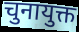
चुनायुक्त